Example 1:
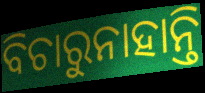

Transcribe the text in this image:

ବିଚାରୁନାହାନ୍ତି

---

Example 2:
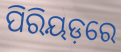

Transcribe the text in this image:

ପିରିୟଡ଼ରେ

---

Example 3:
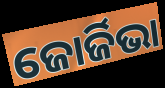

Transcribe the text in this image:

ଜୋର୍ଜିଭା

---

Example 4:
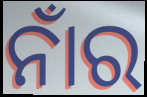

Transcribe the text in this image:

ନାଁର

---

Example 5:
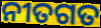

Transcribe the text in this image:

ନୀତଗତ